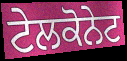
ਟੇਲਕੋਨੇਟ